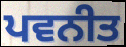
ਪਵਨੀਤ